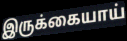
இருக்கையாய்